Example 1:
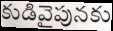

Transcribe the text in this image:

కుడివైపునకు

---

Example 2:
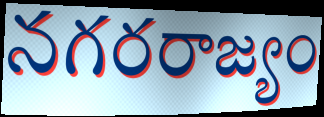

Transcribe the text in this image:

నగరరాజ్యం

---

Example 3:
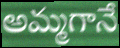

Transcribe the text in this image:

అమ్మగానే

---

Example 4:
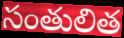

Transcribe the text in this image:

సంతులిత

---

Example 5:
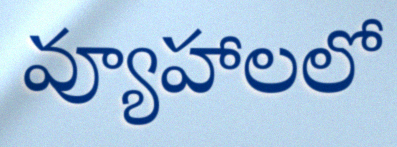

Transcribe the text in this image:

వ్యూహాలలో